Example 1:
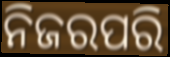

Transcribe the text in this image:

ନିଜରପରି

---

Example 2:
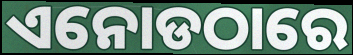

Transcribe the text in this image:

ଏନୋଡଠାରେ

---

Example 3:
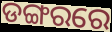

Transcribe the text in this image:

ଡଙ୍ଗରରେ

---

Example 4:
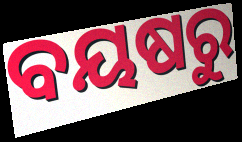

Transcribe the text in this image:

ବୟଷରୁ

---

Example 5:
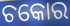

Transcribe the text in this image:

ଚକୋର